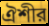
ঐশীর